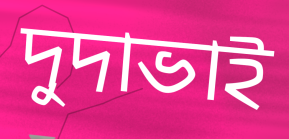
দুদাভাই